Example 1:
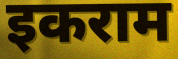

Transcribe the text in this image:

इकराम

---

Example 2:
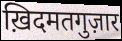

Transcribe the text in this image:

ख़िदमतगुज़ार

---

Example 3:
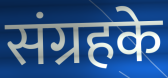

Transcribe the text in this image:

संग्रहके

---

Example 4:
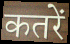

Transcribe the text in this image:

कतरें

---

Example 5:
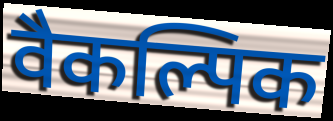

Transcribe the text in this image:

वैकल्पिक